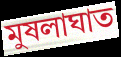
মুষলাঘাত